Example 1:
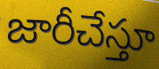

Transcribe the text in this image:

జారీచేస్తూ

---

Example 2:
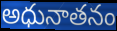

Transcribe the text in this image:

అధునాతనం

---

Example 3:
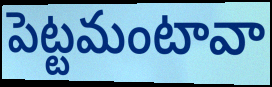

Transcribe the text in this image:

పెట్టమంటావా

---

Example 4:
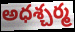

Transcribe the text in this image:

అధశ్చర్మ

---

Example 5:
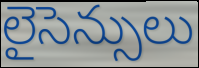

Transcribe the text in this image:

లైసెన్సులు